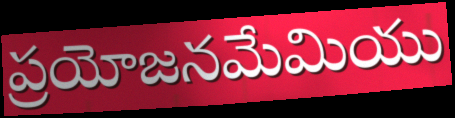
ప్రయోజనమేమియు